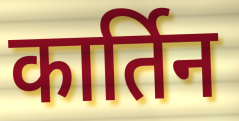
कार्तिन